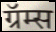
ग्रॅम्स